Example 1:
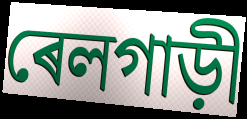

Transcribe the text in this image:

ৰেলগাড়ী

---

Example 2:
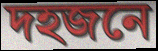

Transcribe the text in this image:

দহজনে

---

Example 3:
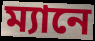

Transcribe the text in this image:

ম্যানে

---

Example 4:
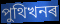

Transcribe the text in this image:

পুথিখনৰ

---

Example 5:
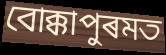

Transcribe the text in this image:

বোক্কাপুৰমত